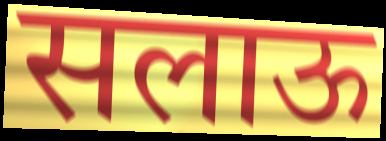
सलाऊ